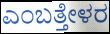
ಎಂಬತ್ತೇಳರ